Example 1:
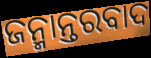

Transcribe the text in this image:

ଜନ୍ମାନ୍ତରବାଦ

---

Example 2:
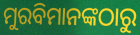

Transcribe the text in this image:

ମୁରବିମାନଙ୍କଠାରୁ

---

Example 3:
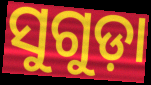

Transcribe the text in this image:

ସୁଗୁଡ଼ା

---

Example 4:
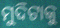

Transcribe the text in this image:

ମୁଦିଟାକୁ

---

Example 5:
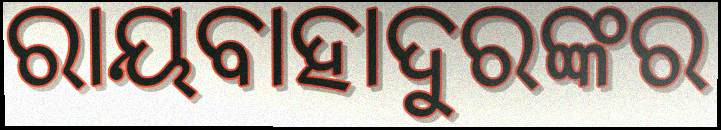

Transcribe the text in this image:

ରାୟବାହାଦୁରଙ୍କର